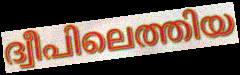
ദ്വീപിലെത്തിയ